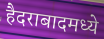
हैदराबादमध्ये